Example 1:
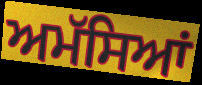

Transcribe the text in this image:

ਅਮੱਸਿਆਂ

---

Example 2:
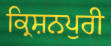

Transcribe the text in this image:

ਕ੍ਰਿਸ਼ਨਪੁਰੀ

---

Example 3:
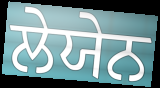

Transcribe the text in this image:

ਲੇਯੇਨ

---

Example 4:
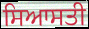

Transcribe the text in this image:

ਸਿਆਸਤੀ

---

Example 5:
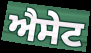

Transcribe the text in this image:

ਐਸੇਟ